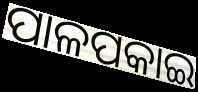
ପାଳପକାଇ